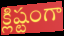
క్లిష్టంగా